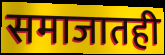
समाजातही